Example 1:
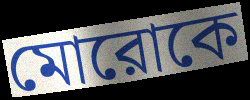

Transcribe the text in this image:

মোরোকে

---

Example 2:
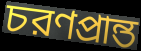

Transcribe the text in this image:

চরণপ্রান্ত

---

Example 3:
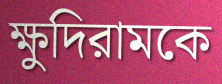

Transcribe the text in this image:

ক্ষুদিরামকে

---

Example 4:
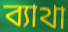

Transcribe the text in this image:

ব্যাথা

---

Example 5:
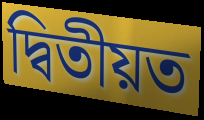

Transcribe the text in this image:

দ্বিতীয়ত